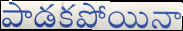
పాడకపోయినా